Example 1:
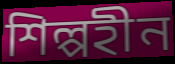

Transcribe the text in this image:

শিল্পহীন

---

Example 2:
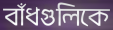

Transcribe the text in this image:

বাঁধগুলিকে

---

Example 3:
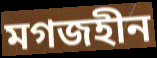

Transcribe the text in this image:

মগজহীন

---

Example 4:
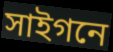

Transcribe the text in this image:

সাইগনে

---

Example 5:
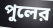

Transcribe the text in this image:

পুলের